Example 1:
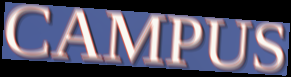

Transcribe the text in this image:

CAMPUS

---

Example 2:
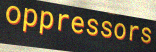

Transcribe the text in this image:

oppressors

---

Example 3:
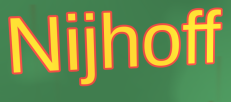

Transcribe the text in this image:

Nijhoff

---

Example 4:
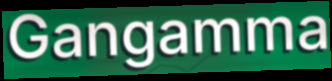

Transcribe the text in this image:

Gangamma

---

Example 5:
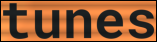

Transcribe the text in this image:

tunes